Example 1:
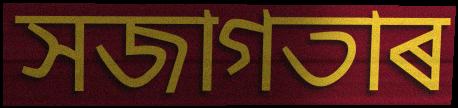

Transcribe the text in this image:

সজাগতাৰ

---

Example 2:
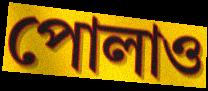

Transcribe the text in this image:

পোলাও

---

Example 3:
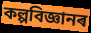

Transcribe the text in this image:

কল্পবিজ্ঞানৰ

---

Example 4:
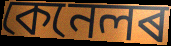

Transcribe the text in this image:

কেনেলৰ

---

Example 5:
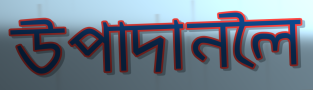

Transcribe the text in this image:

উপাদানলৈ